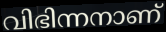
വിഭിന്നനാണ്